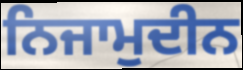
ਨਿਜਾਮੁਦੀਨ